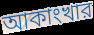
আকাংখার